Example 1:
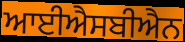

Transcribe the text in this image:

ਆਈਐਸਬੀਐਨ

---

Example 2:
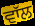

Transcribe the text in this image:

ਵਾੱਲ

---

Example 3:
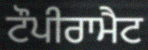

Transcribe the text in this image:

ਟੌਪੀਰਾਮੈਟ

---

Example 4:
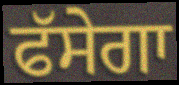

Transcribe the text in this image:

ਫੱਸੇਗਾ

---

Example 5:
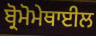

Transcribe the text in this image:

ਬ੍ਰੋਮੋਮੇਥਾਈਲ